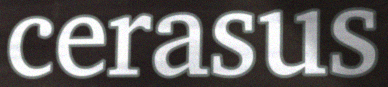
cerasus